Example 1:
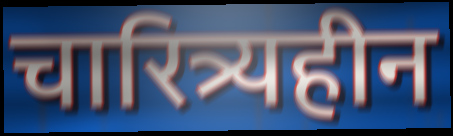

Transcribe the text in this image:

चारित्र्यहीन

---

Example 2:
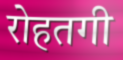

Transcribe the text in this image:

रोहतगी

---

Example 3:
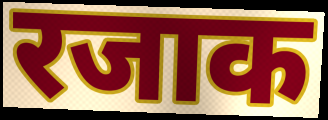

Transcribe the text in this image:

रजाक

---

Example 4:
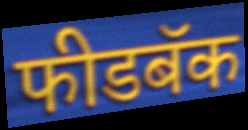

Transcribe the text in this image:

फीडबॅक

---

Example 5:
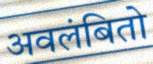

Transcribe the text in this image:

अवलंबितो